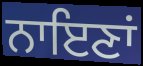
ਨਾਇਣਾਂ